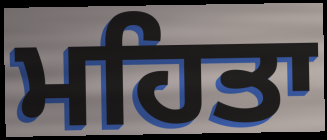
ਮਹਿਤਾ